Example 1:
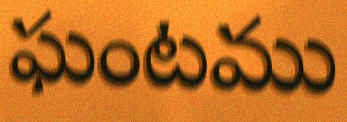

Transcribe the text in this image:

ఘంటము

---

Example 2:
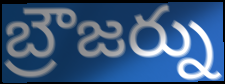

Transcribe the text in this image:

బ్రౌజర్ను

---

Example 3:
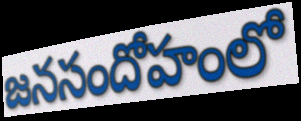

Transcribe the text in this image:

జనసందోహంలో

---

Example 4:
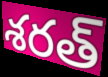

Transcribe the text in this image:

శరత్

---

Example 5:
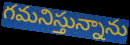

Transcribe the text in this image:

గమనిస్తున్నాను